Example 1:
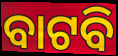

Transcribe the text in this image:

ବାଟବି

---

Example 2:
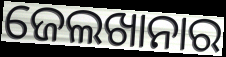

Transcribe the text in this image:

ଜେଲଖାନାର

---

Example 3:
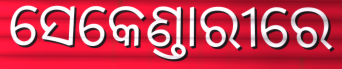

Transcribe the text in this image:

ସେକେଣ୍ଡାରୀରେ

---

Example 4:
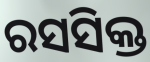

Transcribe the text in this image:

ରସସିକ୍ତ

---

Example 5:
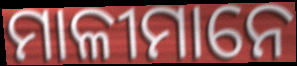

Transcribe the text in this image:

ମାଳୀମାନେ